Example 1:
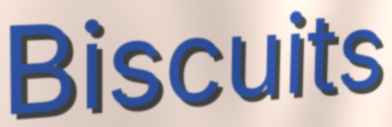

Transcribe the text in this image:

Biscuits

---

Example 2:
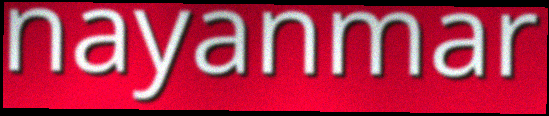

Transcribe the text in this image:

nayanmar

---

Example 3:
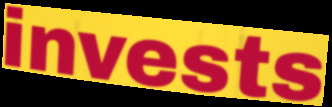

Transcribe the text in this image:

invests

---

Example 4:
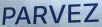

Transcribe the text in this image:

PARVEZ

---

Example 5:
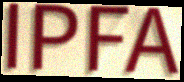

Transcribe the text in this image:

IPFA